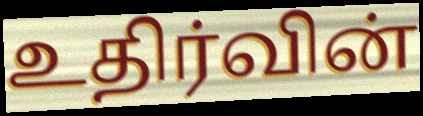
உதிர்வின்